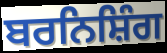
ਬਰਨਿਸ਼ਿੰਗ